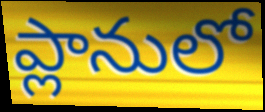
ప్లానులో